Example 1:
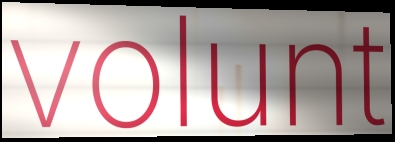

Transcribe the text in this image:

volunt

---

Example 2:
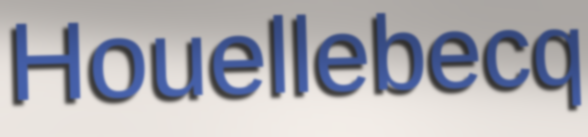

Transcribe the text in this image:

Houellebecq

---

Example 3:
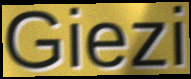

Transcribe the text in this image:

Giezi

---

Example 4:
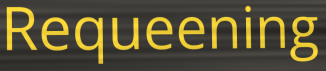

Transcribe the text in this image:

Requeening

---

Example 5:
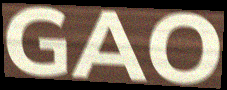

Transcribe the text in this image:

GAO